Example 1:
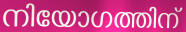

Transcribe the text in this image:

നിയോഗത്തിന്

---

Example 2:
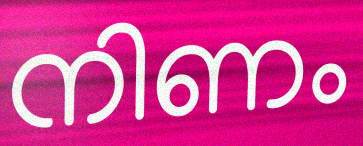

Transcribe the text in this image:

നിണം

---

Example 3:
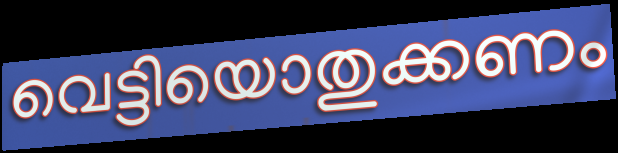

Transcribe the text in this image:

വെട്ടിയൊതുക്കണം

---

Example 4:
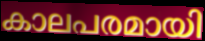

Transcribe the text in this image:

കാലപരമായി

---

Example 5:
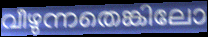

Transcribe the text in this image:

വീഴുന്നതെങ്കിലോ